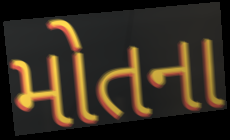
મોતના